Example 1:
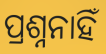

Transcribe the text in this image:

ପ୍ରଶ୍ନନାହିଁ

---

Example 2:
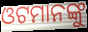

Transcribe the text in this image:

ଓଟମାନଙ୍କୁ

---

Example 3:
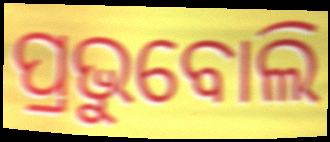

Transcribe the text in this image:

ପ୍ରଭୁବୋଲି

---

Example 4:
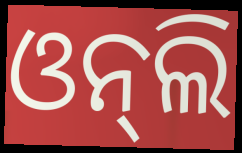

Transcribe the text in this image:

ଓନ୍‍ଲି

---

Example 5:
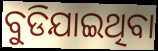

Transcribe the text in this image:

ବୁଡିଯାଇଥିବା